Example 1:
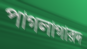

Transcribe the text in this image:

পাগলাগারদ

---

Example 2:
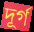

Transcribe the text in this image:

দূর্গ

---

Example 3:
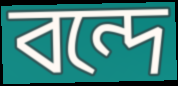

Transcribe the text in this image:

বন্দে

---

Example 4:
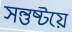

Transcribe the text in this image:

সন্তুষ্টয়ে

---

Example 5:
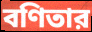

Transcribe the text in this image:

বণিতার